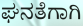
ಘನತೆಗಾಗಿ